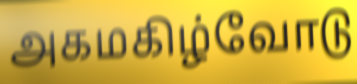
அகமகிழ்வோடு